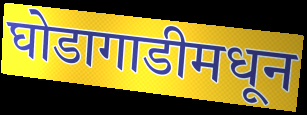
घोडागाडीमधून